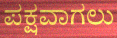
ಪಕ್ಷವಾಗಲು